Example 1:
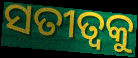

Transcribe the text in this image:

ସତୀତ୍ୱକୁ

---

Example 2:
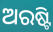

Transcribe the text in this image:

ଅରଷ୍ଟି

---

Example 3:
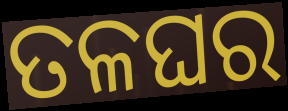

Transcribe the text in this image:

ତଳଘର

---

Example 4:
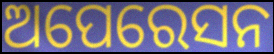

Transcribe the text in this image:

ଅପେରେସନ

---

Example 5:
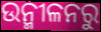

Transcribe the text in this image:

ଉନ୍ମୀଳନରୁ